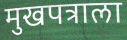
मुखपत्राला